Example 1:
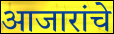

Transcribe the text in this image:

आजारांचे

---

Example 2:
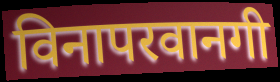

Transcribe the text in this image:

विनापरवानगी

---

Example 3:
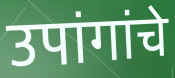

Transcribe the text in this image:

उपांगांचे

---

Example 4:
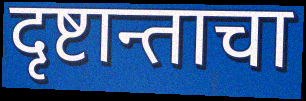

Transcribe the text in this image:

दृष्टान्ताचा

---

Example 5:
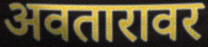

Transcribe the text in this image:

अवतारावर